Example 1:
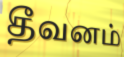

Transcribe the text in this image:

தீவனம்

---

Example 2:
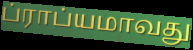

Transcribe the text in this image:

ப்ராப்யமாவது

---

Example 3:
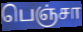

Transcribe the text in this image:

பெஞ்சா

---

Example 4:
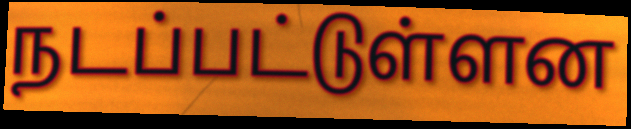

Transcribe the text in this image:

நடப்பட்டுள்ளன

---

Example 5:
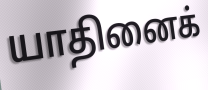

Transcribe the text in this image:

யாதினைக்